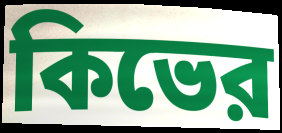
কিভের